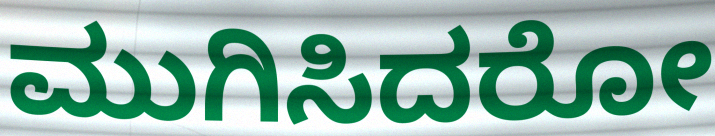
ಮುಗಿಸಿದರೋ